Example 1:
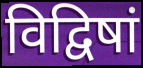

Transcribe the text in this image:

विद्विषां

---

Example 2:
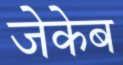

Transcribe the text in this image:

जेकेब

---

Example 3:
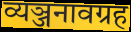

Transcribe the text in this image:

व्यञ्जनावग्रह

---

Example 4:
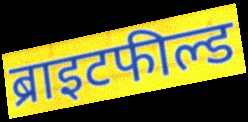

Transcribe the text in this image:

ब्राइटफील्ड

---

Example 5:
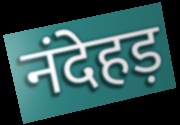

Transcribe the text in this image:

नंदेहड़